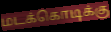
மடக்கொடிக்கு